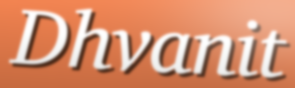
Dhvanit